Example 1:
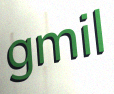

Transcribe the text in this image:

gmil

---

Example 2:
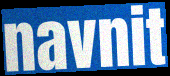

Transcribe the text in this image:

navnit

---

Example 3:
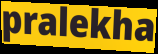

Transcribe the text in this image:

pralekha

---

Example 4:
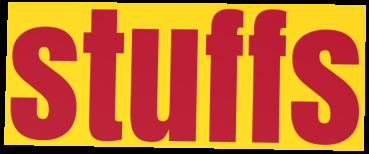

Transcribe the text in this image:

stuffs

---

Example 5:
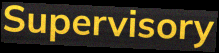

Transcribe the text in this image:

Supervisory